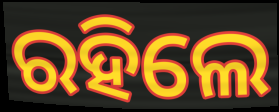
ରହିଲେ